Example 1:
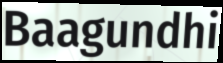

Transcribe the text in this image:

Baagundhi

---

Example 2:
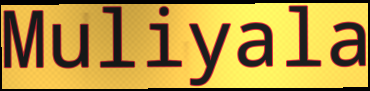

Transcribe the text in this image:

Muliyala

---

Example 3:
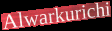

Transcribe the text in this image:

Alwarkurichi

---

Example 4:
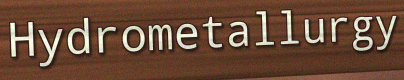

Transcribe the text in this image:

Hydrometallurgy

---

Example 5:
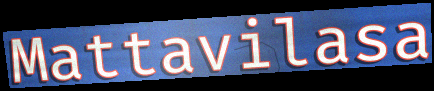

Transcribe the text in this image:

Mattavilasa